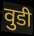
वुडी